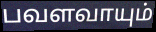
பவளவாயும்